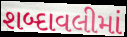
શબ્દાવલીમાં